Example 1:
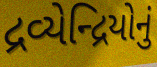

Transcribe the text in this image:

દ્રવ્યેન્દ્રિયોનું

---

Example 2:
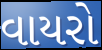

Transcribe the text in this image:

વાયરો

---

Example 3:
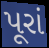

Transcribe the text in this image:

પૂરાં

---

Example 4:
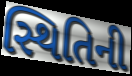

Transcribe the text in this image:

સ્થિતિની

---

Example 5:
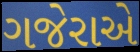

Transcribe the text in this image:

ગજેરાએ